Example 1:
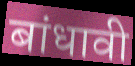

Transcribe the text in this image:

बांधावी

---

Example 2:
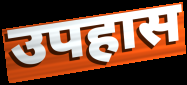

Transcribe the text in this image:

उपहास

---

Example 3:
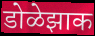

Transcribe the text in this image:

डोळेझाक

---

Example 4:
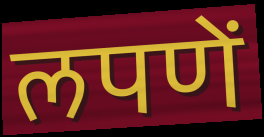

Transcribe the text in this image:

लपणें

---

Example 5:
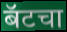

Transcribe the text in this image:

बॅटचा